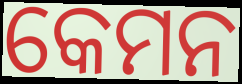
କେମନ